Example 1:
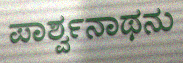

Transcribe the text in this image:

ಪಾರ್ಶ್ವನಾಥನು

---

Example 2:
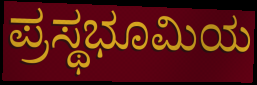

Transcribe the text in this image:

ಪ್ರಸ್ಥಭೂಮಿಯ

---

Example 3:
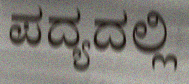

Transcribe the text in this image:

ಪದ್ಯದಲ್ಲಿ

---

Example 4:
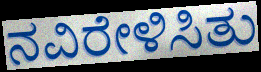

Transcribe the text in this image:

ನವಿರೇಳಿಸಿತು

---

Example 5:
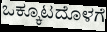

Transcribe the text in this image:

ಒಕ್ಕೂಟದೊಳಗೆ